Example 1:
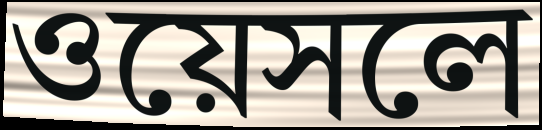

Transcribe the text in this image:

ওয়েসলে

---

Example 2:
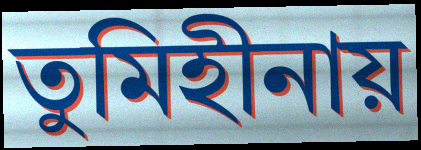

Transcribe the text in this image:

তুমিহীনায়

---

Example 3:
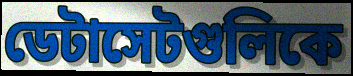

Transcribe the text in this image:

ডেটাসেটগুলিকে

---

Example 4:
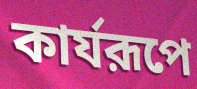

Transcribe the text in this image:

কার্যরূপে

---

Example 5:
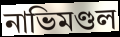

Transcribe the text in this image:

নাভিমণ্ডল